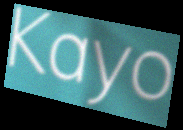
Kayo